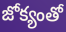
జోక్యంతో